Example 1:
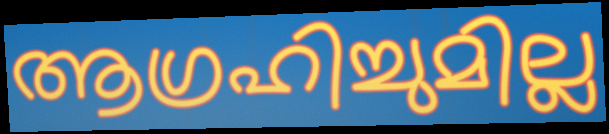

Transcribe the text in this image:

ആഗ്രഹിച്ചുമില്ല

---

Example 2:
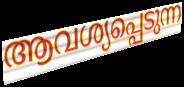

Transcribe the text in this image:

ആവശ്യപ്പെടുന്ന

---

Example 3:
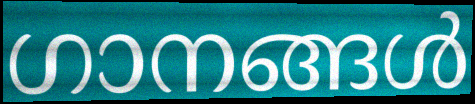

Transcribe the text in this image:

ഗാനങ്ങൾ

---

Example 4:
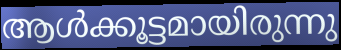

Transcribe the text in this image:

ആൾക്കൂട്ടമായിരുന്നു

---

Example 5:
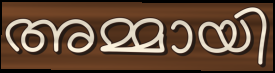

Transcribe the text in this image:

അമ്മായി